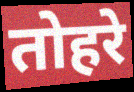
तोहरे